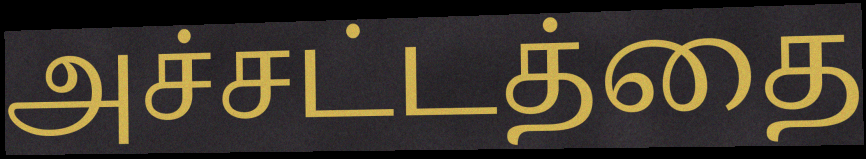
அச்சட்டத்தை